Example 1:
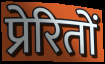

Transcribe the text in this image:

प्रेरितों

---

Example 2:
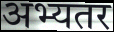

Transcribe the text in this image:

अभ्यतर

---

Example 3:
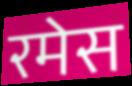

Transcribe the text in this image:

रमेस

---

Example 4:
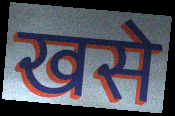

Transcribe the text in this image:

खसे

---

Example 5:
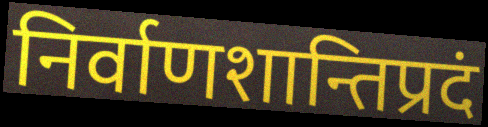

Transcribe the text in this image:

निर्वाणशान्तिप्रदं